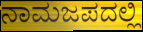
ನಾಮಜಪದಲ್ಲಿ